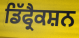
ਡਿੱਫ੍ਰੈਕਸ਼ਨ